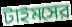
টাইমসের